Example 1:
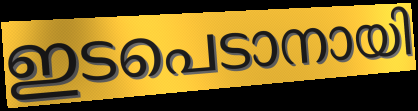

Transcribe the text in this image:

ഇടപെടാനായി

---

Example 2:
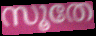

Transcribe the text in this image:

സൂതേ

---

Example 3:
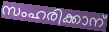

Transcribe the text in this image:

സംഹരിക്കാന്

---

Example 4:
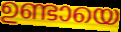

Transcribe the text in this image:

ഉണ്ടായെ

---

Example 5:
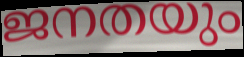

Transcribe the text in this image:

ജനതയും